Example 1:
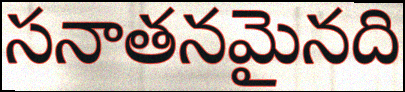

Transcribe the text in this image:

సనాతనమైనది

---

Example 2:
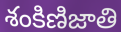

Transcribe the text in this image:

శంకిణిజాతి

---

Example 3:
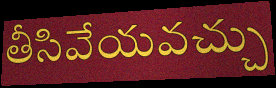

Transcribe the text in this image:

తీసివేయవచ్చు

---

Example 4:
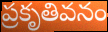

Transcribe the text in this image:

ప్రకృతివనం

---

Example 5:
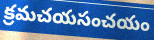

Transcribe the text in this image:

క్రమచయసంచయం